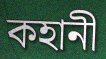
কহানী